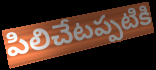
పిలిచేటప్పటికి